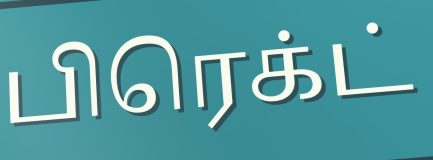
பிரெக்ட்